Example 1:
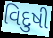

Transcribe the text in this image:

વિદુષી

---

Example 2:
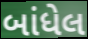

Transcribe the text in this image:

બાંધેલ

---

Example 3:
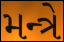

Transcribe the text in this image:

મન્ત્રે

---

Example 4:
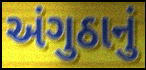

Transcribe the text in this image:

અંગુઠાનું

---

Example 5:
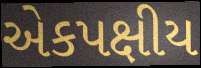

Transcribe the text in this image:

એકપક્ષીય